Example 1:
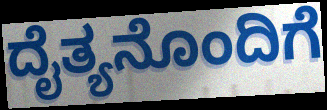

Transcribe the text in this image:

ದೈತ್ಯನೊಂದಿಗೆ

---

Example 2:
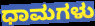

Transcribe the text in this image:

ಧಾಮಗಳು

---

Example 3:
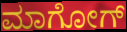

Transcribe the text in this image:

ಮಾಗೋಗ್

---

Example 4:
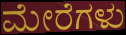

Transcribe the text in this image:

ಮೇರೆಗಳು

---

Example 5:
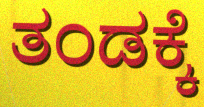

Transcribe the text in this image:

ತಂಡಕ್ಕೆ